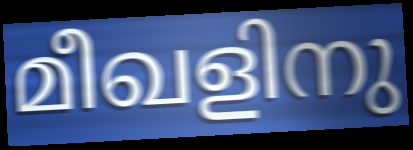
മീഖളിനു